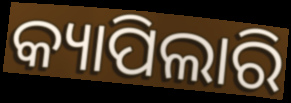
କ୍ୟାପିଲାରି